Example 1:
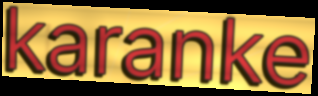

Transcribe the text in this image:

karanke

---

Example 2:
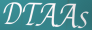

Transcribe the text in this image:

DTAAs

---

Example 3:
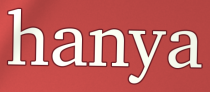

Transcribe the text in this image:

hanya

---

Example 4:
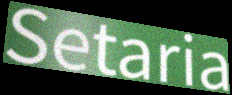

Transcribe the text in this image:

Setaria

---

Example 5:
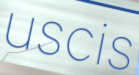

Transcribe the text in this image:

uscis